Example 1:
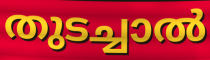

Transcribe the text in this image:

തുടച്ചാൽ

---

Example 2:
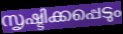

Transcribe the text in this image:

സൃഷ്ടിക്കപ്പെടും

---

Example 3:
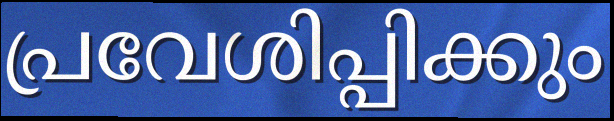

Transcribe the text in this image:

പ്രവേശിപ്പിക്കും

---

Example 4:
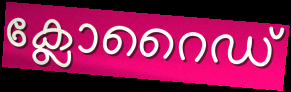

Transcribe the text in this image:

ക്ലോറൈഡ്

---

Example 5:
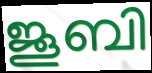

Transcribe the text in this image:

ജൂബി